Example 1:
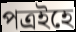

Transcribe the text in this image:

পত্ৰইহে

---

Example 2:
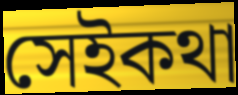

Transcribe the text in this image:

সেইকথা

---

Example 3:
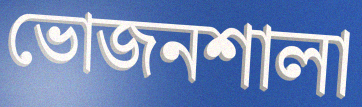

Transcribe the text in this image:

ভোজনশালা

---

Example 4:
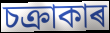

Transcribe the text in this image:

চক্ৰাকাৰ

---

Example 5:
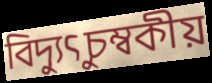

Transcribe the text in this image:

বিদ্যুৎচুম্বকীয়